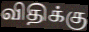
விதிக்கு